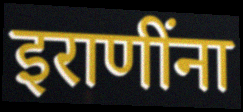
इराणींना